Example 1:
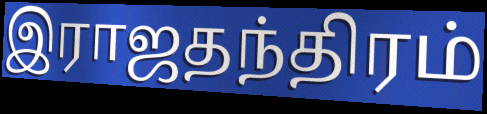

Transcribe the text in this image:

இராஜதந்திரம்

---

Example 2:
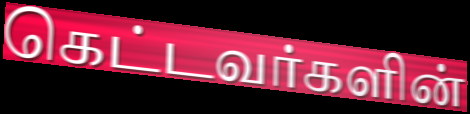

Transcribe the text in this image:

கெட்டவர்களின்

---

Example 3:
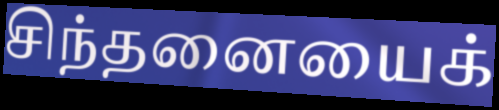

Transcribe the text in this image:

சிந்தனையைக்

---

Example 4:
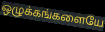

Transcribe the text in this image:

ஒழுக்கங்களையே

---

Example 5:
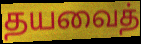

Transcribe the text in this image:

தயவைத்